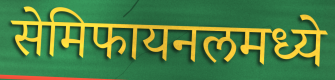
सेमिफायनलमध्ये